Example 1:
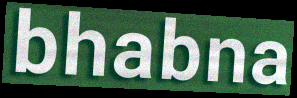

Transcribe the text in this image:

bhabna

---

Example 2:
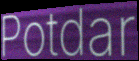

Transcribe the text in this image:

Potdar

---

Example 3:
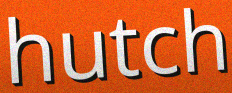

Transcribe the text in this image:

hutch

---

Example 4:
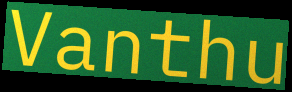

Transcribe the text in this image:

Vanthu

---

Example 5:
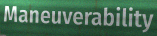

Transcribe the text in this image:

Maneuverability